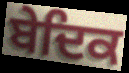
ਬੇਦਿਕ